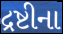
દ્રષ્ટીના